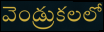
వెండ్రుకలలో